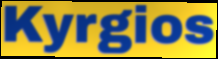
Kyrgios